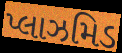
પ્લાઝમિડ